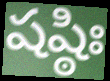
షష్ఠిః